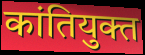
कांतियुक्त